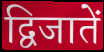
द्विजातें